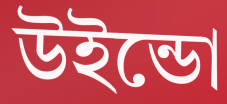
উইন্ডো